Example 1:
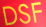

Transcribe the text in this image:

DSF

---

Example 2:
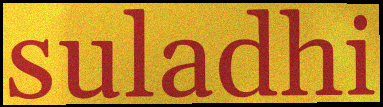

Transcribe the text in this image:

suladhi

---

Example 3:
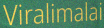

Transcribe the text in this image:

Viralimalai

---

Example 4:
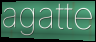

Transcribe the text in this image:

agatte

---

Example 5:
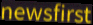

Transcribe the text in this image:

newsfirst